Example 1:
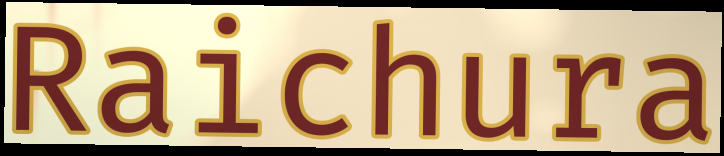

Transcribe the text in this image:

Raichura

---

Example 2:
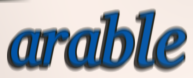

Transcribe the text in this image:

arable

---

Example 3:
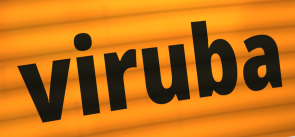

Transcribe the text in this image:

viruba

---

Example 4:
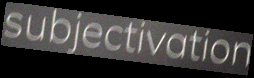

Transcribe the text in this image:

subjectivation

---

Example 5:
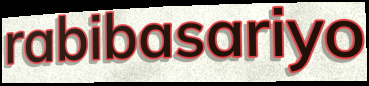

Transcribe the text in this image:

rabibasariyo